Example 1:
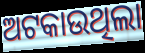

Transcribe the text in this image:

ଅଟକାଉଥିଲା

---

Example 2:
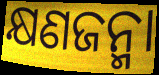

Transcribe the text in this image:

କ୍ଷଣଜନ୍ମା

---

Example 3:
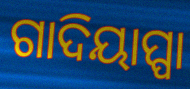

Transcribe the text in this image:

ଗାଦିୟାପ୍ପା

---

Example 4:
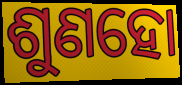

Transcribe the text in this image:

ଶୁଣହୋ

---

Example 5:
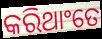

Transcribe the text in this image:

କରିଥାଂତେ